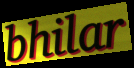
bhilar